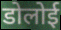
डोलोई